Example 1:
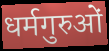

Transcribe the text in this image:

धर्मगुरुओं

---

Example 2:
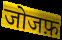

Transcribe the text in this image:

जोजफ़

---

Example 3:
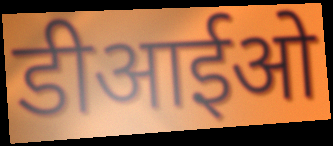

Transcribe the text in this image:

डीआईओ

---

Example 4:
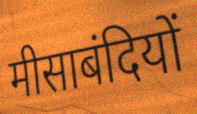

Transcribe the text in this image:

मीसाबंदियों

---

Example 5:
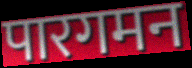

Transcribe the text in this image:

पारगमन